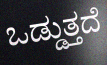
ಒಡ್ಡುತ್ತದೆ